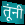
तूंनी